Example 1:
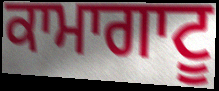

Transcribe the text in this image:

ਕਾਮਾਗਾਟੂ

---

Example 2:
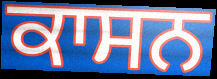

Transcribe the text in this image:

ਕਾਸਨ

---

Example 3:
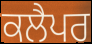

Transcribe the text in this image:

ਕਲੈਪਰ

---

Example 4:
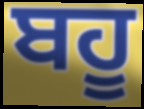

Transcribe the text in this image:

ਬਹੂ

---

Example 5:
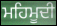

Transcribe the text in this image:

ਮਹਿਮੂਦੀ